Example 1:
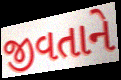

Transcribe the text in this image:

જીવતાને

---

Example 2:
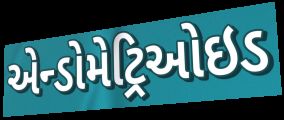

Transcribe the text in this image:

એન્ડોમેટ્રિઓઇડ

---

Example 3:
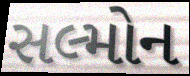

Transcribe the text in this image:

સલ્મોન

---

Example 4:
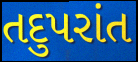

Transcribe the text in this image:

તદુપરાંત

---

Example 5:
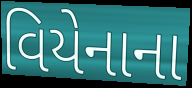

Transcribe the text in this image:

વિયેનાના